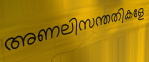
അണലിസന്തതികളേ